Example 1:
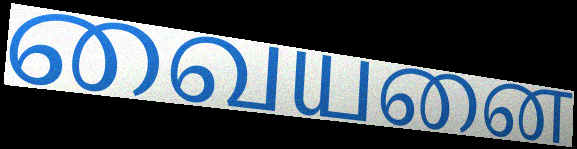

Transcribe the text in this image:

வையனை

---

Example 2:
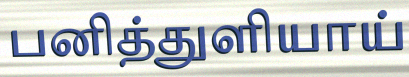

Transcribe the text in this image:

பனித்துளியாய்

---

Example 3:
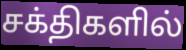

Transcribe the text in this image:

சக்திகளில்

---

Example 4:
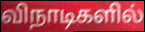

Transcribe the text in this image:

விநாடிகளில்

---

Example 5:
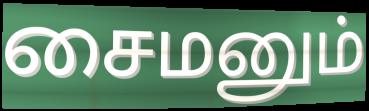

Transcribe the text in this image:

சைமனும்